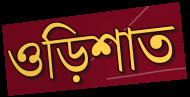
ওড়িশাত